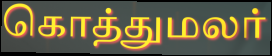
கொத்துமலர்